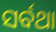
ସର୍ବଥା